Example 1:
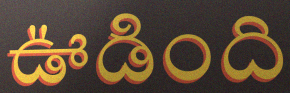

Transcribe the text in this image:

ఊడింది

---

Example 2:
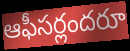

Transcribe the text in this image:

ఆఫీసర్లందరూ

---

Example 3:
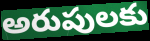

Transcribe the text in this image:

అరుపులకు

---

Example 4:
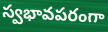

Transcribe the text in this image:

స్వభావపరంగా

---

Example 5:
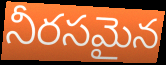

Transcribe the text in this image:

నీరసమైన